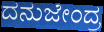
ದನುಜೇಂದ್ರ